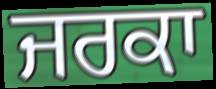
ਜਰਕਾ